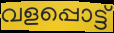
വളപ്പൊട്ട്